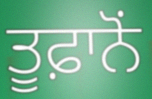
ਤੂਫ਼ਾਨੋਂ